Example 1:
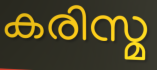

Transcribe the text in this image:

കരിസ്മ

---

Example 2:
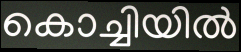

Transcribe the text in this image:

കൊച്ചിയിൽ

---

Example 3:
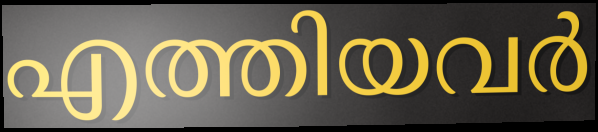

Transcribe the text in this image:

എത്തിയവർ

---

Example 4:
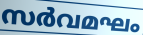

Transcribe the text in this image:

സർവമഘം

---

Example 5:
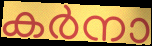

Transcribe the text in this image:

കർനാ